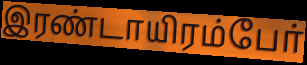
இரண்டாயிரம்பேர்